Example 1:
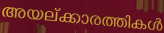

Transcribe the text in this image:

അയല്ക്കാരത്തികൾ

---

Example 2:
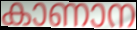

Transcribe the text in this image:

കാണാന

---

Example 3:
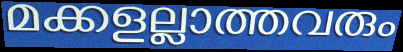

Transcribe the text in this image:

മക്കളല്ലാത്തവരും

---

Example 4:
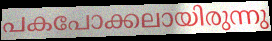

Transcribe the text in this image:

പകപോക്കലായിരുന്നു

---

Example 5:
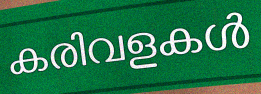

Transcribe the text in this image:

കരിവളകൾ